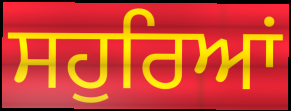
ਸਹੁਰਿਆਂ